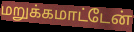
மறுக்கமாட்டேன்